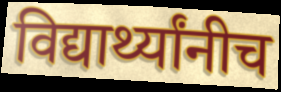
विद्यार्थ्यांनीच